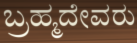
ಬ್ರಹ್ಮದೇವರು